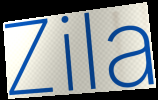
Zila